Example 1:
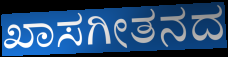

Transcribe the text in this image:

ಖಾಸಗೀತನದ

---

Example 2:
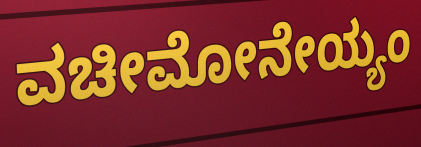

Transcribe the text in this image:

ವಚೀಮೋನೇಯ್ಯಂ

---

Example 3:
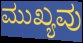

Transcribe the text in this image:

ಮುಖ್ಯವು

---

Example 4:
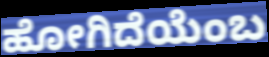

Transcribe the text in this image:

ಹೋಗಿದೆಯೆಂಬ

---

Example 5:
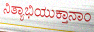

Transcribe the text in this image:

ನಿತ್ಯಾಭಿಯುಕ್ತಾನಾಂ